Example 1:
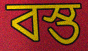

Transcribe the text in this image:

বস্ত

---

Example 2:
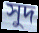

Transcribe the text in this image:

সুদ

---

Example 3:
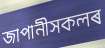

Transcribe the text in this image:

জাপানীসকলৰ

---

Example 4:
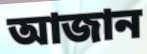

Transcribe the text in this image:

আজান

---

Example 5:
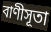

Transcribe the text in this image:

বাণীসূতা